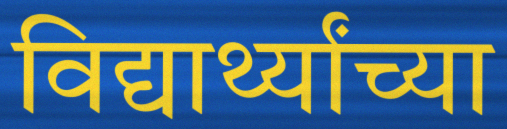
विद्यार्थ्यांच्या